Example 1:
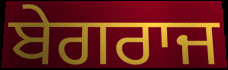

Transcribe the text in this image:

ਬੇਗਰਾਜ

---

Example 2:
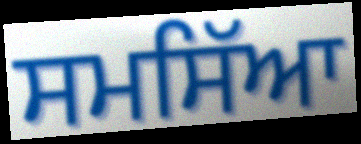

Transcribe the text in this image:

ਸਮਸਿੱਆ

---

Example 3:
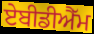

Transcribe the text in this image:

ਏਬੀਡੀਐੱਮ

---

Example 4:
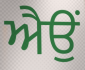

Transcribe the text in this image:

ਐਉਂ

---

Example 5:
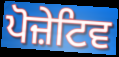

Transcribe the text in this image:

ਪੋਜ਼ੇਟਿਵ